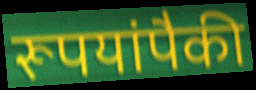
रूपयांपैकी